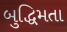
બુદ્ધિમતા